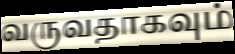
வருவதாகவும்